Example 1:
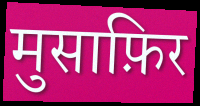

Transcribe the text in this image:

मुसाफ़िर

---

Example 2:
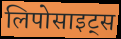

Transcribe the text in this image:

लिपोसाइट्स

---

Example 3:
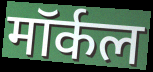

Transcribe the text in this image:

मॉर्कल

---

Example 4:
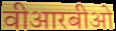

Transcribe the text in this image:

वीआरबीओ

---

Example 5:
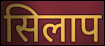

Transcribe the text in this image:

सिलाप